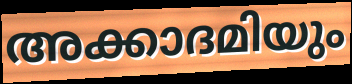
അക്കാദമിയും